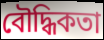
বৌদ্ধিকতা